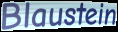
Blaustein